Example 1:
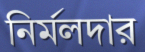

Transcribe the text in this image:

নির্মলদার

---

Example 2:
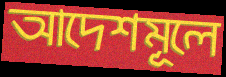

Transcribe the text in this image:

আদেশমূলে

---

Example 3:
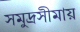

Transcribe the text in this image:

সমুদ্রসীমায়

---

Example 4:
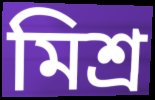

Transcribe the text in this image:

মিশ্র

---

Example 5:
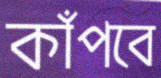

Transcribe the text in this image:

কাঁপবে